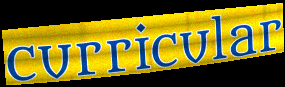
curricular